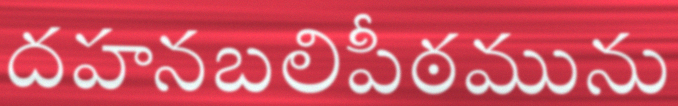
దహనబలిపీఠమును